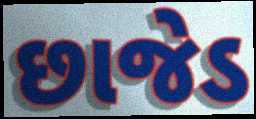
છાજેડ